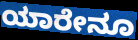
ಯಾರೇನೂ